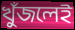
খুঁজলেই